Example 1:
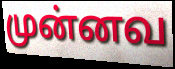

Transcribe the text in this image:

முன்னவ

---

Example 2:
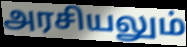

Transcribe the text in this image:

அரசியலும்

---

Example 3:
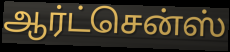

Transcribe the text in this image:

ஆர்ட்சென்ஸ்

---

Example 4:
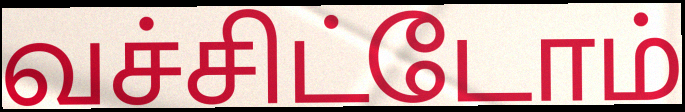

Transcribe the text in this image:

வச்சிட்டோம்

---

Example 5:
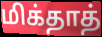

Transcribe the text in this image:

மிக்தாத்